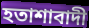
হতাশাবাদী